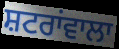
ਸ਼ਟਰਾਂਵਾਲਾ